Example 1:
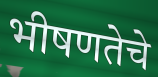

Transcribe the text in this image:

भीषणतेचे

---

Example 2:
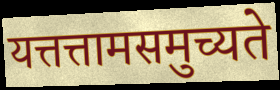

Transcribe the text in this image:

यत्तत्तामसमुच्यते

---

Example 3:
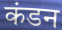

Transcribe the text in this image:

कंडन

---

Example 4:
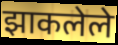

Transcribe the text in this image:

झाकलेले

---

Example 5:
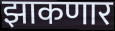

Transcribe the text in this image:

झाकणार